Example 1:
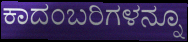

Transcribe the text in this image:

ಕಾದಂಬರಿಗಳನ್ನೂ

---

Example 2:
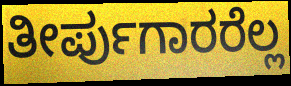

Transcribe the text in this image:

ತೀರ್ಪುಗಾರರೆಲ್ಲ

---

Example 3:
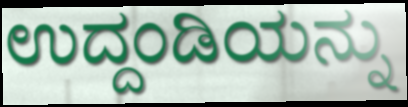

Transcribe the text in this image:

ಉದ್ದಂಡಿಯನ್ನು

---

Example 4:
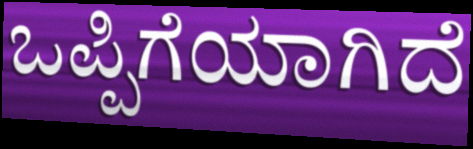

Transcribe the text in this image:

ಒಪ್ಪಿಗೆಯಾಗಿದೆ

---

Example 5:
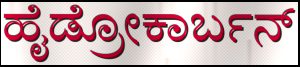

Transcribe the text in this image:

ಹೈಡ್ರೋಕಾರ್ಬನ್